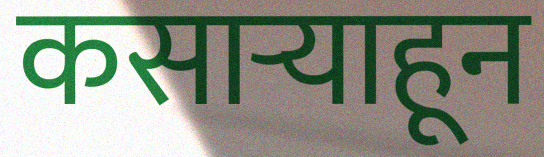
कसाऱ्याहून